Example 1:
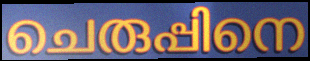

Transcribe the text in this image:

ചെരുപ്പിനെ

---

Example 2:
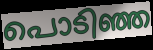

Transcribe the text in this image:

പൊടിഞ്ഞ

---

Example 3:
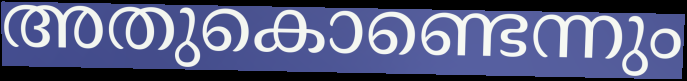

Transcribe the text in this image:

അതുകൊണ്ടെന്നും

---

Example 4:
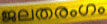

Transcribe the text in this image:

ജലതരംഗം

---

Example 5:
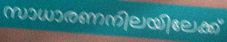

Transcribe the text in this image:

സാധാരണനിലയിലേക്ക്